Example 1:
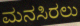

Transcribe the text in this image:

ಮನಸಿರಲು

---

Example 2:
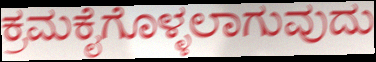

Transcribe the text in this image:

ಕ್ರಮಕೈಗೊಳ್ಳಲಾಗುವುದು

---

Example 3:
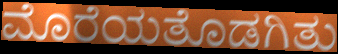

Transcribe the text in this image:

ಮೊರೆಯತೊಡಗಿತು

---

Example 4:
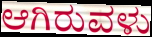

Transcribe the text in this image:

ಆಗಿರುವಳು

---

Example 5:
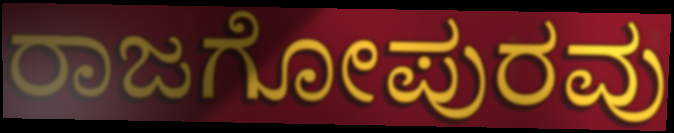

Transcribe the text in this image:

ರಾಜಗೋಪುರವು